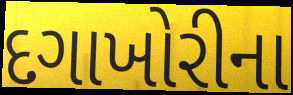
દગાખોરીના